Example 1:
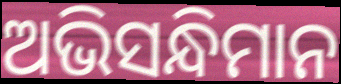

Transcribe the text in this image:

ଅଭିସନ୍ଧିମାନ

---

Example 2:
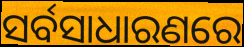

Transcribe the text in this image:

ସର୍ବସାଧାରଣରେ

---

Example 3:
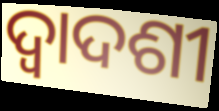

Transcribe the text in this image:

ଦ୍ବାଦଶୀ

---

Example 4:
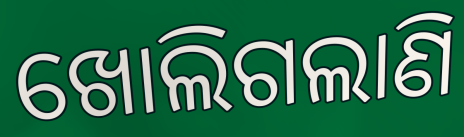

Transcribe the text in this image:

ଖୋଲିଗଲାଣି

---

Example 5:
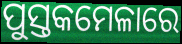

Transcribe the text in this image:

ପୁସ୍ତକମେଳାରେ